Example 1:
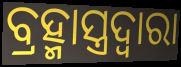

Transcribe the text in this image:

ବ୍ରହ୍ମାସ୍ତ୍ରଦ୍ୱାରା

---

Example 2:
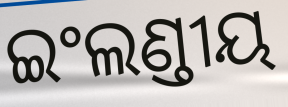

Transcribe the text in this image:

ଇଂଲଣ୍ଡୀୟ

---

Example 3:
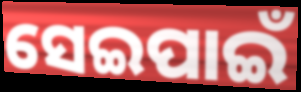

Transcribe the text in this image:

ସେଇପାଇଁ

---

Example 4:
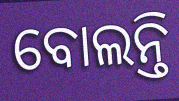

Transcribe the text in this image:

ବୋଲନ୍ତି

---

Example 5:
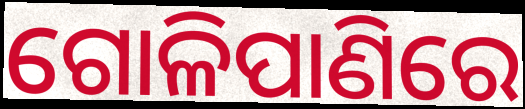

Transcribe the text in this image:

ଗୋଳିପାଣିରେ